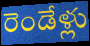
రెండేళ్లు